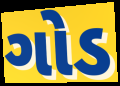
ગોડ